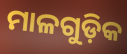
ମାଳଗୁଡ଼ିକ